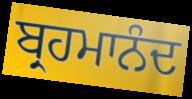
ਬ੍ਰਹਮਾਨੰਦ